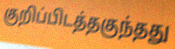
குறிப்பிடத்தகுந்தது